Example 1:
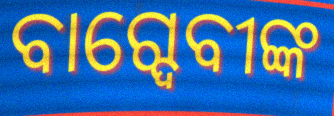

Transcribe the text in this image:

ବାଗ୍ଦେବୀଙ୍କ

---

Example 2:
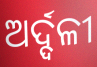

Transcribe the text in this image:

ଅର୍ଦ୍ଦଳୀ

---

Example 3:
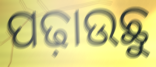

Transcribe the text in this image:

ପଢ଼ାଉଛୁ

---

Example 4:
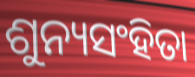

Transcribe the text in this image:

ଶୁନ୍ୟସଂହିତା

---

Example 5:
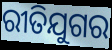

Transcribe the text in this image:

ରୀତିଯୁଗର